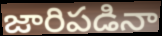
జారిపడినా